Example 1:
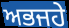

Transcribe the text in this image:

ਅਭਜਹੇ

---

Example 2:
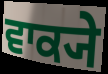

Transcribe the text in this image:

ਵਾਕ੍ਯੇ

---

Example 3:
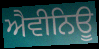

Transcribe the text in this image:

ਐਵੀਨਿਊ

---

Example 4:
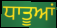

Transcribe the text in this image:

ਧਾਤੂਆਂ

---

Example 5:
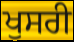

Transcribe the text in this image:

ਖੁਸਰੀ